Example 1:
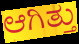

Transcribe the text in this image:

ಆಗಿತ್ತು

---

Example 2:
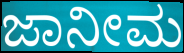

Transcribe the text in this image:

ಜಾನೀಮ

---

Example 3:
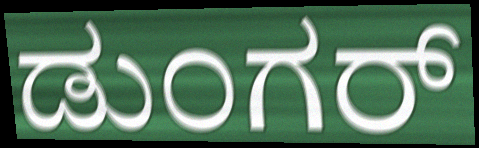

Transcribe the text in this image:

ಡುಂಗರ್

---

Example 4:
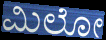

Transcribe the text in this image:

ಮಿಲೋ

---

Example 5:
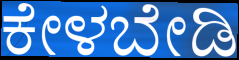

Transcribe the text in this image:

ಕೇಳಬೇಡಿ